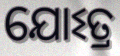
ଯୋଽତ୍ର